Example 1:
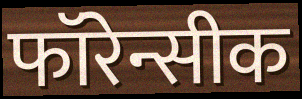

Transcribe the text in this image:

फॉरेन्सीक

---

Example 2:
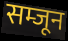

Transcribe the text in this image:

सम्जून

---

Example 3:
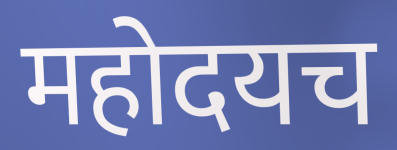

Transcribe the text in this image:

महोदयच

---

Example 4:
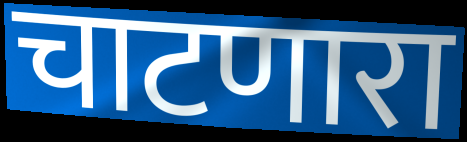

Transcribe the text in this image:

चाटणारा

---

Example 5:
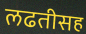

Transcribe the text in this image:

लढतीसह